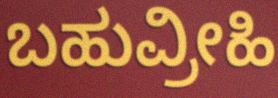
ಬಹುವ್ರೀಹಿ